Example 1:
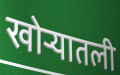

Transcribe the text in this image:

खोऱ्यातली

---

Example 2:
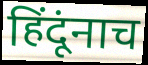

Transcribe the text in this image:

हिंदूंनाच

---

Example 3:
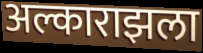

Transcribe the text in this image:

अल्काराझला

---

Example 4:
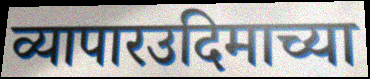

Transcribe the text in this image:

व्यापारउदिमाच्या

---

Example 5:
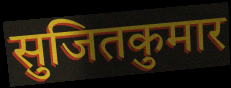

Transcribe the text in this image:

सुजितकुमार